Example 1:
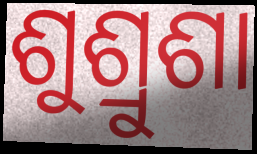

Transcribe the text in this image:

ଶୁଶ୍ରୁଶା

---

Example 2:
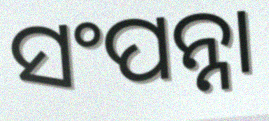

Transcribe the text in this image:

ସଂପନ୍ନା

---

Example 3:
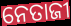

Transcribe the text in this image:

ନେତାଜୀ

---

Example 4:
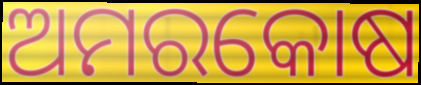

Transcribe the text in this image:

ଅମରକୋଷ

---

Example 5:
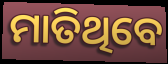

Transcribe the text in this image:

ମାତିଥିବେ